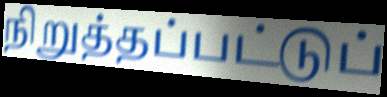
நிறுத்தப்பட்டுப்